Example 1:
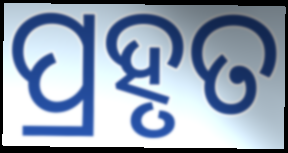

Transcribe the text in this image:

ପ୍ରହୃତ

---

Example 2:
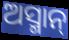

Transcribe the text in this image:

ଅସ୍ମାନ୍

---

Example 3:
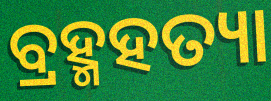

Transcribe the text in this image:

ବ୍ରହ୍ମହତ୍ୟା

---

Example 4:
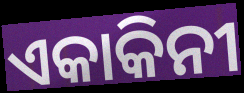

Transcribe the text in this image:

ଏକାକିନୀ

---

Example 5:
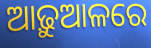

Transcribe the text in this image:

ଆଢ଼ୁଆଳରେ